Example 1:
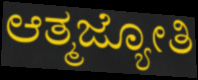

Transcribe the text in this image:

ಆತ್ಮಜ್ಯೋತಿ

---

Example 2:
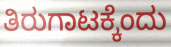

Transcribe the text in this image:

ತಿರುಗಾಟಕ್ಕೆಂದು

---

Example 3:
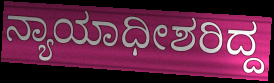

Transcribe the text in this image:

ನ್ಯಾಯಾಧೀಶರಿದ್ದ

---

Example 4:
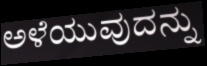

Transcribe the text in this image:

ಅಳೆಯುವುದನ್ನು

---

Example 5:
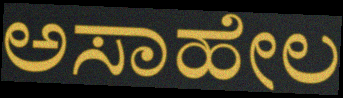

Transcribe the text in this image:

ಅಸಾಹೇಲ